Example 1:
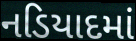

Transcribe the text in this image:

નડિયાદમાં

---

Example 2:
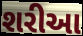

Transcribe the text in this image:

શરીઆ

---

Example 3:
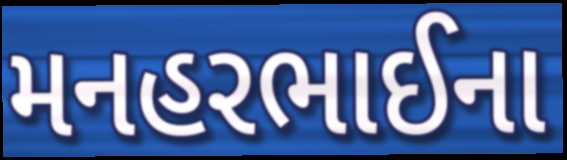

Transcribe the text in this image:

મનહરભાઈના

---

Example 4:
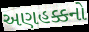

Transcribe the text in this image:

અણહક્કનો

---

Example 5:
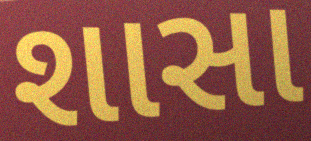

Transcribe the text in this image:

શાસા